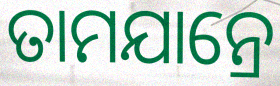
ତାମଯାନ୍ରେ